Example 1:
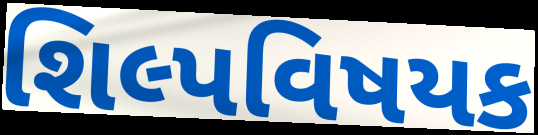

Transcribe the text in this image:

શિલ્પવિષયક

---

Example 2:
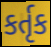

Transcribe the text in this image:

કર્તૃક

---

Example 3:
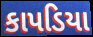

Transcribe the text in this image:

કાપડિયા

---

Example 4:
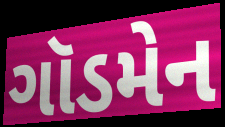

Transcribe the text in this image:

ગૉડમેન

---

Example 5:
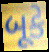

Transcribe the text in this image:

બૂકે